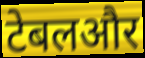
टेबलऔर